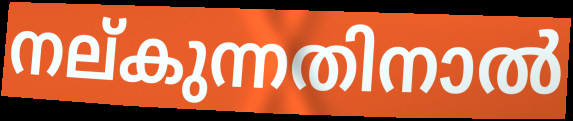
നല്കുന്നതിനാൽ